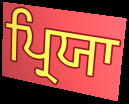
ਪ੍ਰਿਯਾ